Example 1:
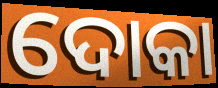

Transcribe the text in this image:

ଦୋକା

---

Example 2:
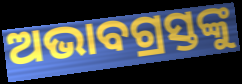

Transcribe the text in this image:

ଅଭାବଗ୍ରସ୍ତଙ୍କୁ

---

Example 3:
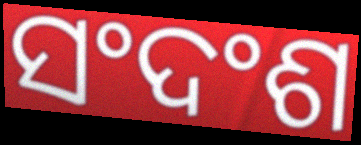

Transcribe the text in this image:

ସଂଦଂଶ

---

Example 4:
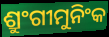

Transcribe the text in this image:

ଶ୍ରୁଂଗୀମୁନିଂକ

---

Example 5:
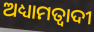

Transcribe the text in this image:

ଅଧ୍ୟାମତ୍ବାଦୀ